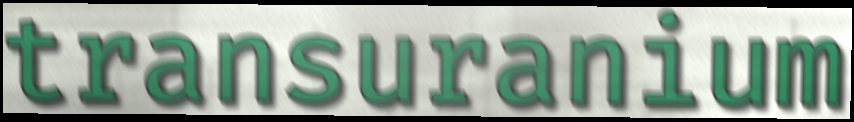
transuranium